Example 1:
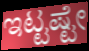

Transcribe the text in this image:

ಇಟ್ಟಷ್ಟೇ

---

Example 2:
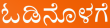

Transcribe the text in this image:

ಓಡಿನೊಳಗೆ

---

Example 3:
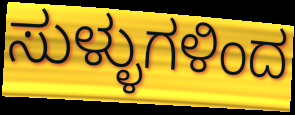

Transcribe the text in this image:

ಸುಳ್ಳುಗಳಿಂದ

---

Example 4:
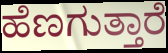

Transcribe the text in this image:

ಹೆಣಗುತ್ತಾರೆ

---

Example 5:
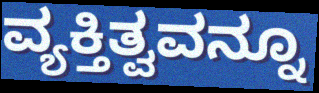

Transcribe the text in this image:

ವ್ಯಕ್ತಿತ್ವವನ್ನೂ